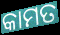
କାମତ